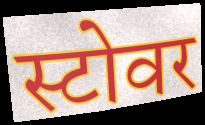
स्टोवर